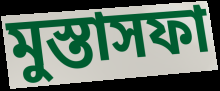
মুস্তাসফা